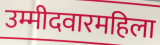
उम्मीदवारमहिला